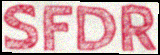
SFDR